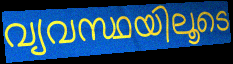
വ്യവസ്ഥയിലൂടെ